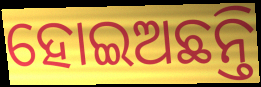
ହୋଇଅଛନ୍ତି